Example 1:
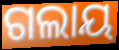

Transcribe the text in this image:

ଗଲାୟ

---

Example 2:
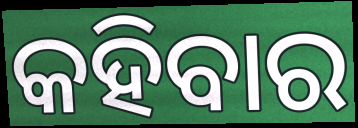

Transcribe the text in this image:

କହିବାର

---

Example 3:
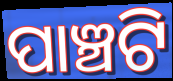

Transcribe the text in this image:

ପାଞ୍ଚଟି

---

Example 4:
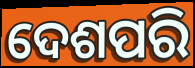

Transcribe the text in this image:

ଦେଶପରି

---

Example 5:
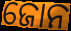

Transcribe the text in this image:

ଜୋନ